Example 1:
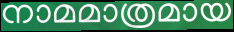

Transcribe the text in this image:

നാമമാത്രമായ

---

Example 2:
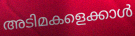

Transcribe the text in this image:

അടിമകളെക്കാൾ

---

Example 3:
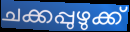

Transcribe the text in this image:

ചക്കപ്പുഴുക്ക്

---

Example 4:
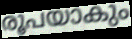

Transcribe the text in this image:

രൂപയാകും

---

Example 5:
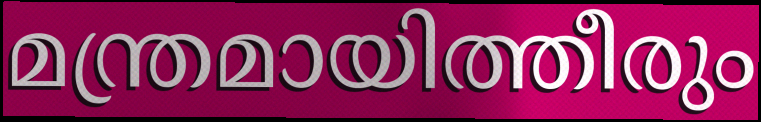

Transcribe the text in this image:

മന്ത്രമായിത്തീരും